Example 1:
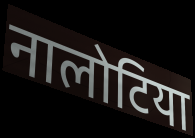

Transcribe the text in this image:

नालोटिया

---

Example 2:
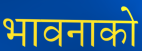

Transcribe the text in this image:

भावनाको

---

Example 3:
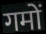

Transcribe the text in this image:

गमों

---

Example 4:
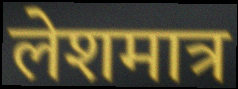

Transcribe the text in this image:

लेशमात्र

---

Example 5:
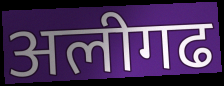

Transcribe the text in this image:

अलीगढ